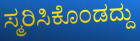
ಸ್ಮರಿಸಿಕೊಂಡದ್ದು